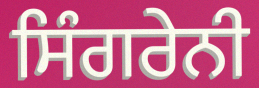
ਸਿੰਗਰੇਨੀ